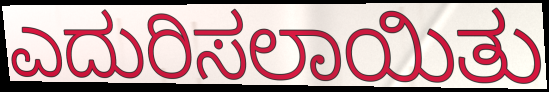
ಎದುರಿಸಲಾಯಿತು